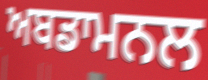
ਅਬਡਾਮਨਲ